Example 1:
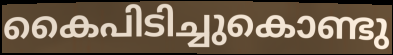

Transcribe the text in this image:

കൈപിടിച്ചുകൊണ്ടു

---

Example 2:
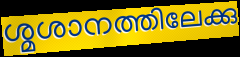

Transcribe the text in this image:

ശ്മശാനത്തിലേക്കു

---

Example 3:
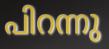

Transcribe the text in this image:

പിറന്നു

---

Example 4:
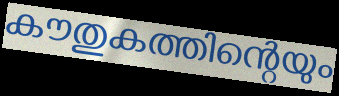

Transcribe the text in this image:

കൗതുകത്തിന്റെയും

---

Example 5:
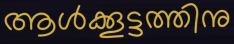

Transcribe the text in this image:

ആൾക്കൂട്ടത്തിനു